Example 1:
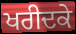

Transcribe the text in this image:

ਖਰੀਦਕੇ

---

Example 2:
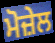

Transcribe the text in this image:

ਮੋਜ਼ੇਲ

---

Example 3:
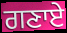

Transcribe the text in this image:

ਗਣਾਏ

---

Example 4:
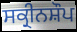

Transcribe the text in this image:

ਸਕ੍ਰੀਨਸ਼ੌਪ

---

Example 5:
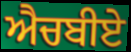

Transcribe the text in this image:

ਐਚਬੀਏ